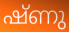
ഷ്ണു